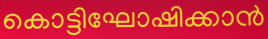
കൊട്ടിഘോഷിക്കാൻ